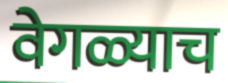
वेगळ्याच